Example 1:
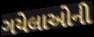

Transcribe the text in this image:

ગયેલાઓની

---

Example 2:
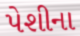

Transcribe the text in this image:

પેશીના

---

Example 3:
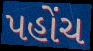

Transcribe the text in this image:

પહોંચ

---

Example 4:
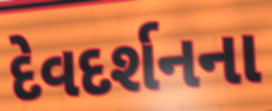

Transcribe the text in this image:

દેવદર્શનના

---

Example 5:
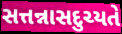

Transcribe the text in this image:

સત્તન્નાસદુચ્યતે